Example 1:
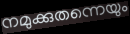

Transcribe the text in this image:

നമുക്കുതന്നെയും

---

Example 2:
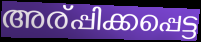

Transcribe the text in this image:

അര്പ്പിക്കപ്പെട്ട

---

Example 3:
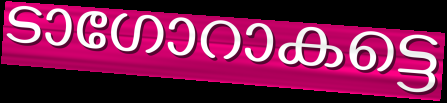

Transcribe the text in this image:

ടാഗോറാകട്ടെ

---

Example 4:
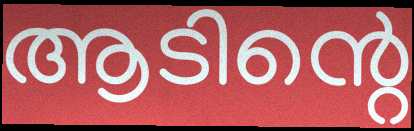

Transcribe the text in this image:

ആടിന്റെ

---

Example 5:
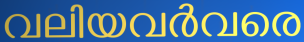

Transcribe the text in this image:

വലിയവർവരെ